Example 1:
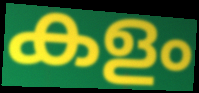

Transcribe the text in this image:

കളം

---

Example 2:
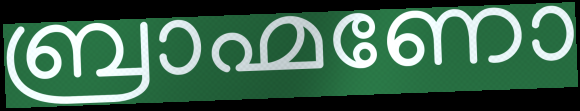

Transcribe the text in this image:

ബ്രാഹ്മണോ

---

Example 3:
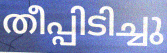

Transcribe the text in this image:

തീപ്പിടിച്ചു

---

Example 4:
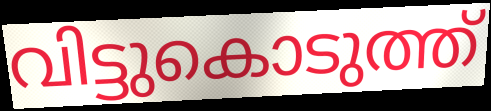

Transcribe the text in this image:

വിട്ടുകൊടുത്ത്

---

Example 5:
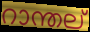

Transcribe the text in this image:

റാന്തല്